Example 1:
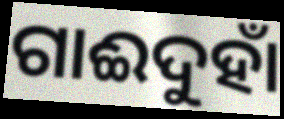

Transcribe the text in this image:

ଗାଈଦୁହାଁ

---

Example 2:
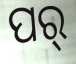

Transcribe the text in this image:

ପର୍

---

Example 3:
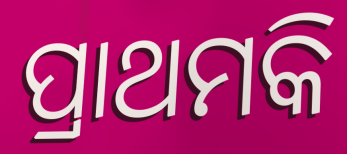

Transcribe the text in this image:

ପ୍ରାଥମକି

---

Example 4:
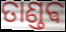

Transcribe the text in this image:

ତାଣ୍ଡଵ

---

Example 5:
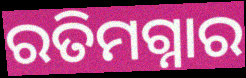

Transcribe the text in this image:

ରତିମଗ୍ନାର